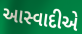
આસ્વાદીએ